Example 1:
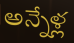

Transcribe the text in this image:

అన్నేళ్ల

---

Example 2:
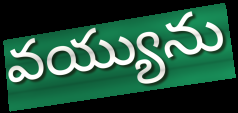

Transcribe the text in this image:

వయ్యును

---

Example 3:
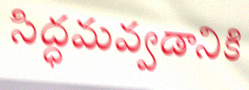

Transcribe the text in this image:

సిద్ధమవ్వడానికి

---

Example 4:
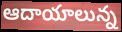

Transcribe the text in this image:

ఆదాయాలున్న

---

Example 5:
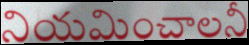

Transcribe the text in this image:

నియమించాలనీ